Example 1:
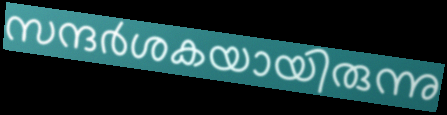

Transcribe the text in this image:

സന്ദർശകയായിരുന്നു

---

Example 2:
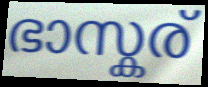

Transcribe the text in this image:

ഭാസ്കര്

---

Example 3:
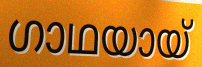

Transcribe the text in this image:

ഗാഥയായ്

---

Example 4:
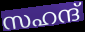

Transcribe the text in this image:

സഹന്ദ്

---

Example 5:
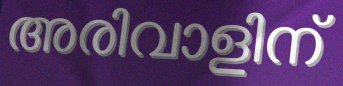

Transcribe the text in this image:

അരിവാളിന്